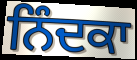
ਨਿੰਦਕਾ